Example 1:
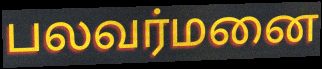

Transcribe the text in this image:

பலவர்மனை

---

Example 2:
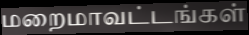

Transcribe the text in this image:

மறைமாவட்டங்கள்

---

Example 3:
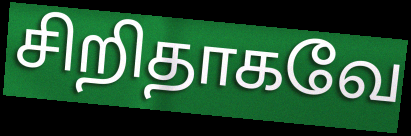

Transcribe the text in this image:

சிறிதாகவே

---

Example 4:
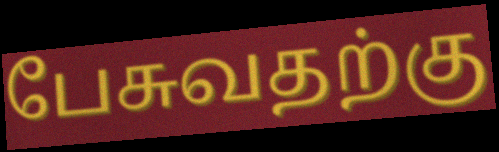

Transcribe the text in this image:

பேசுவதற்கு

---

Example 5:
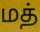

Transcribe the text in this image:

மத்